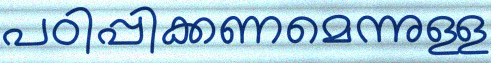
പഠിപ്പിക്കണമെന്നുള്ള